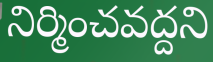
నిర్మించవద్దని